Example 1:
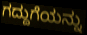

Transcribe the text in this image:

ಗದ್ದುಗೆಯನ್ನು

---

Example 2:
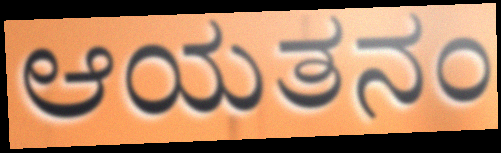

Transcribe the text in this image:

ಆಯತನಂ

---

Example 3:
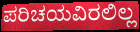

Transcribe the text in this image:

ಪರಿಚಯವಿರಲಿಲ್ಲ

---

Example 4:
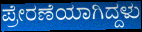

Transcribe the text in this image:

ಪ್ರೇರಣೆಯಾಗಿದ್ದಳು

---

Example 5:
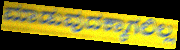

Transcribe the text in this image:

ಮಾಡುವುದಕ್ಕಾಗಲಿಲ್ಲ